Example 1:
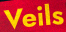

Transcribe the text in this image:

Veils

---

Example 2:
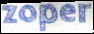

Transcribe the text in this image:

zoper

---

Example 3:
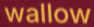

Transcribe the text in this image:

wallow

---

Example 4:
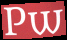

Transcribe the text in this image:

Pw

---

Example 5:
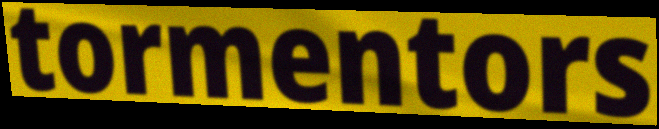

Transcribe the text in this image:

tormentors